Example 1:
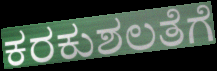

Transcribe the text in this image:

ಕರಕುಶಲತೆಗೆ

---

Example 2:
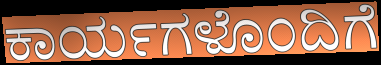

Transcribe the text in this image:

ಕಾರ್ಯಗಳೊಂದಿಗೆ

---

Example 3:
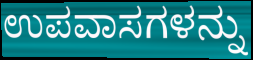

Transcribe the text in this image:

ಉಪವಾಸಗಳನ್ನು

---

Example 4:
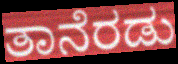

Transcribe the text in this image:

ತಾನೆರಡು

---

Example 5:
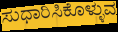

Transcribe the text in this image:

ಸುಧಾರಿಸಿಕೊಳ್ಳುವ